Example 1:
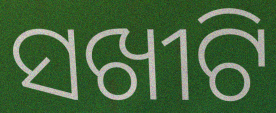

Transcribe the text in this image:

ସଖୀଟି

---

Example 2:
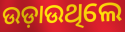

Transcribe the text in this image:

ଉଡ଼ାଉଥିଲେ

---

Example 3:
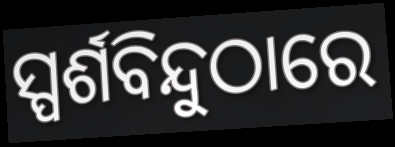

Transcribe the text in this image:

ସ୍ପର୍ଶବିନ୍ଦୁଠାରେ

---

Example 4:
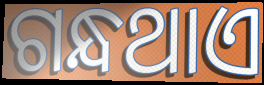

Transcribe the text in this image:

ଗନ୍ଧଥାଏ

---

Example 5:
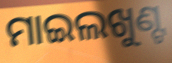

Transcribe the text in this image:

ମାଇଲଖୁଣ୍ଟ